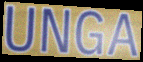
UNGA